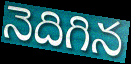
నెదిగిన